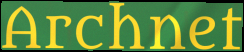
Archnet